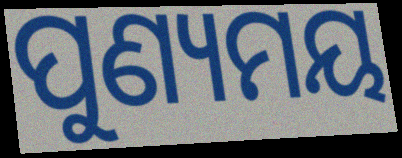
ପୁଣ୍ୟମୟ